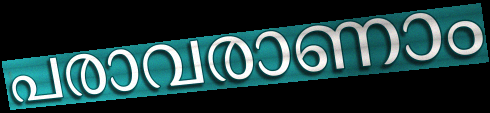
പരാവരാണാം